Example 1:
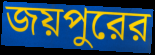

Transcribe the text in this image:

জয়পুরের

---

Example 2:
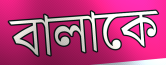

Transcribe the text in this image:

বালাকে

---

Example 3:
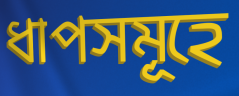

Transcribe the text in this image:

ধাপসমূহে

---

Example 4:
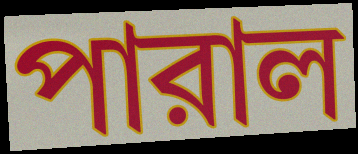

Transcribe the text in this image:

পারাল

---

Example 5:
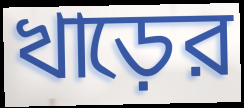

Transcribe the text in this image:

খাড়ের